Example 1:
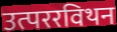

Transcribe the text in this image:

उत्पररविथन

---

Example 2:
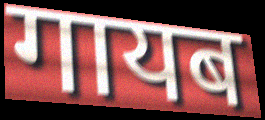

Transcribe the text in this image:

गायब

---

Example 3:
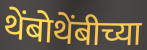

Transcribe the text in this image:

थेंबोथेंबीच्या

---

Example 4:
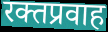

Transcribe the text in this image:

रक्तप्रवाह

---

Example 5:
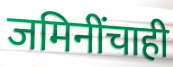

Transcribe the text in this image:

जमिनींचाही